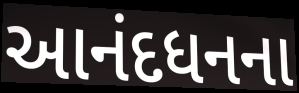
આનંદધનના